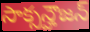
సాక్సన్హౌజన్